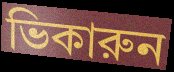
ভিকারুন